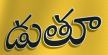
డుతూ